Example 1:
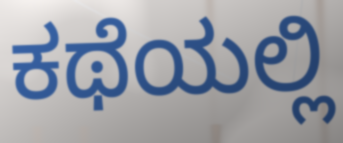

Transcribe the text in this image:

ಕಥೆಯಲ್ಲಿ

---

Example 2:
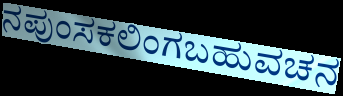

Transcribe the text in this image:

ನಪುಂಸಕಲಿಂಗಬಹುವಚನ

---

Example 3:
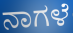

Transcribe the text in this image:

ನಾಗಳೆ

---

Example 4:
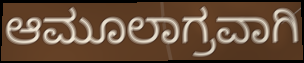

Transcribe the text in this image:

ಆಮೂಲಾಗ್ರವಾಗಿ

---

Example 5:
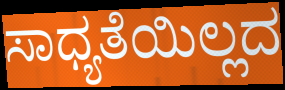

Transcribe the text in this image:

ಸಾಧ್ಯತೆಯಿಲ್ಲದ